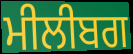
ਮੀਲੀਬਗ